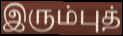
இரும்புத்